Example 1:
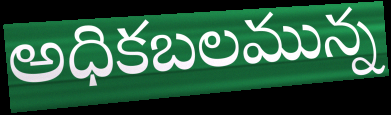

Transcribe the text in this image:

అధికబలమున్న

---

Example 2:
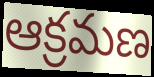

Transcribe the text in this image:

ఆక్రమణ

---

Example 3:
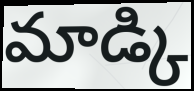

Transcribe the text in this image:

మాడ్కి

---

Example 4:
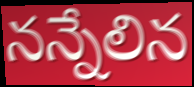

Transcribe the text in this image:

నన్నేలిన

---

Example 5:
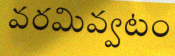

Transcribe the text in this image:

వరమివ్వటం